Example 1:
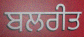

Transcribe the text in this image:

ਬਲਰੀਤ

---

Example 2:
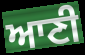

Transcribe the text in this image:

ਆਣੀ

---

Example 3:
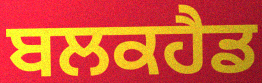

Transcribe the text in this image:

ਬਲਕਹੈਡ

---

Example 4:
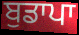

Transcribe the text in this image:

ਬੁਡਾਪਾ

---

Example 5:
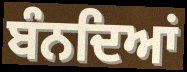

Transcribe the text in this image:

ਬੰਨਦਿਆਂ